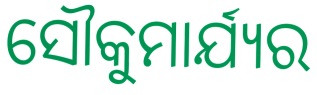
ସୌକୁମାର୍ଯ୍ୟର